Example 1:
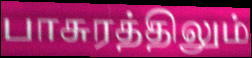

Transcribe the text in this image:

பாசுரத்திலும்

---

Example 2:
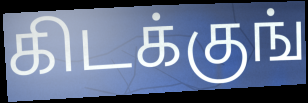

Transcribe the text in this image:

கிடக்குங்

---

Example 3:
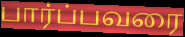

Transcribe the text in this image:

பார்ப்பவரை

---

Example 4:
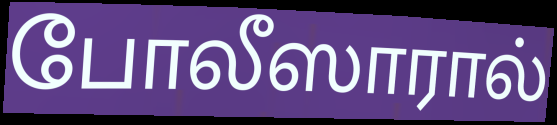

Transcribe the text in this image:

போலீஸாரால்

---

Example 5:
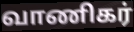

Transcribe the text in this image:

வாணிகர்